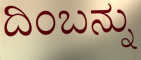
ದಿಂಬನ್ನು